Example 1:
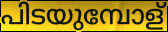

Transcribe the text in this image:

പിടയുമ്പോള്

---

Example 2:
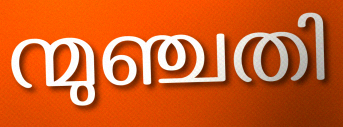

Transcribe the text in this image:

ന്മുഞ്ചതി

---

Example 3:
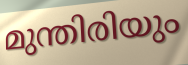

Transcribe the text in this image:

മുന്തിരിയും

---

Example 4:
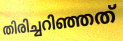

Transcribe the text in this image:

തിരിച്ചറിഞ്ഞത്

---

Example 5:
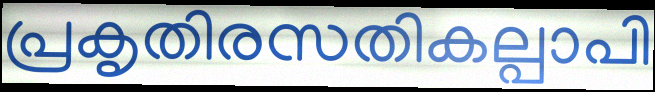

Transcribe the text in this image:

പ്രകൃതിരസതികല്പാപി